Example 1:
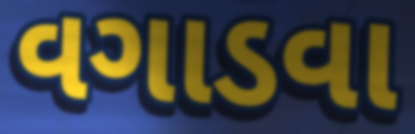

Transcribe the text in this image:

વગાડવા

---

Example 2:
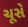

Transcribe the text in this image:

ચૂસે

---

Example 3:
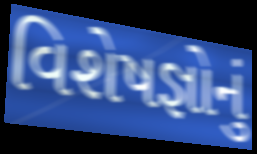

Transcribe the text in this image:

વિશેષજ્ઞોનું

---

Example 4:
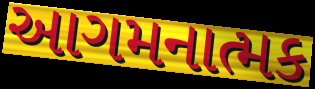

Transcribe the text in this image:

આગમનાત્મક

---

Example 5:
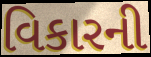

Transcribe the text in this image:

વિકારની